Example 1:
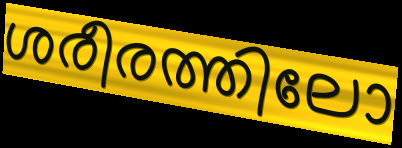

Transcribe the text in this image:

ശരീരത്തിലോ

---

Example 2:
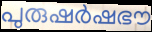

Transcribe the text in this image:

പുരുഷർഷഭൗ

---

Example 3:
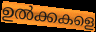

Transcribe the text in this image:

ഉൽക്കകളെ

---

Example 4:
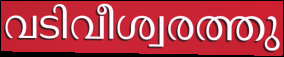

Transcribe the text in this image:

വടിവീശ്വരത്തു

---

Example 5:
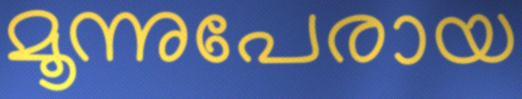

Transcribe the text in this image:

മൂന്നുപേരായ